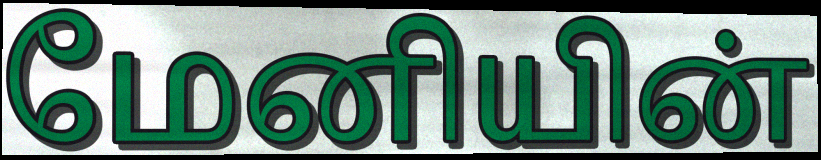
மேனியின்